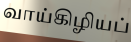
வாய்கிழியப்